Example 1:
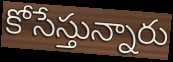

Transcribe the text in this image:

కోసేస్తున్నారు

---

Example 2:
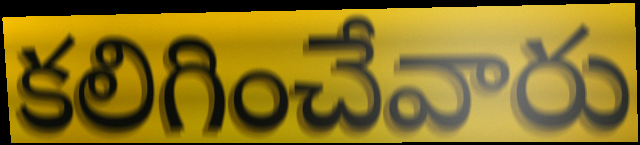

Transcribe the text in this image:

కలిగించేవారు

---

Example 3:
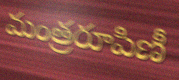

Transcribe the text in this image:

మంత్రరూపిణీ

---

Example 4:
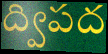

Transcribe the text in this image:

ద్విపద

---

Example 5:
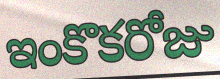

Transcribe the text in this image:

ఇంకొకరోజు